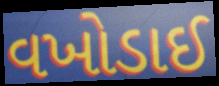
વખોડાઈ